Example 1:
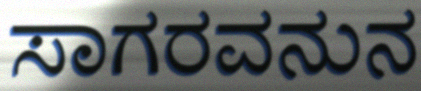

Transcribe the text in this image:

ಸಾಗರವನುನ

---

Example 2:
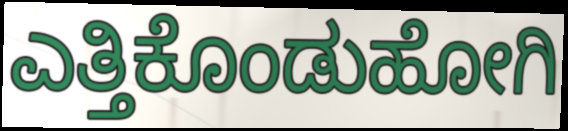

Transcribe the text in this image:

ಎತ್ತಿಕೊಂಡುಹೋಗಿ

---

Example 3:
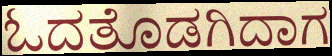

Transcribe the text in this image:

ಓದತೊಡಗಿದಾಗ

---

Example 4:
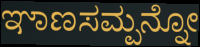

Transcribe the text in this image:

ಞಾಣಸಮ್ಪನ್ನೋ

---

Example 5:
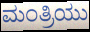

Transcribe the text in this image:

ಮಂತ್ರಿಯು